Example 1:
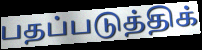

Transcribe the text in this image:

பதப்படுத்திக்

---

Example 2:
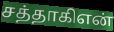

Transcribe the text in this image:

சத்தாகிஎன்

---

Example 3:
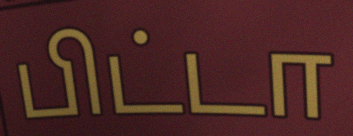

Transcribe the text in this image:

பிட்டா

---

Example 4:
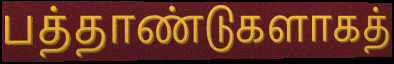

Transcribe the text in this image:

பத்தாண்டுகளாகத்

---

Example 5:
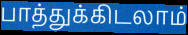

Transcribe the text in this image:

பாத்துக்கிடலாம்